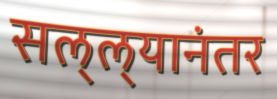
सल्ल्यानंतर